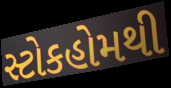
સ્ટોકહોમથી